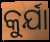
କୁର୍ଯା